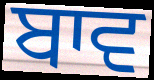
ਬਾਵ